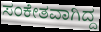
ಸಂಕೇತವಾಗಿದ್ದ